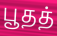
பூதத்